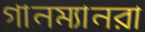
গানম্যানরা